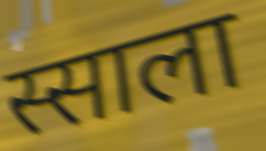
स्साला